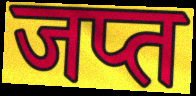
जप्त